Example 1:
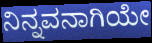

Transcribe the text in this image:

ನಿನ್ನವನಾಗಿಯೇ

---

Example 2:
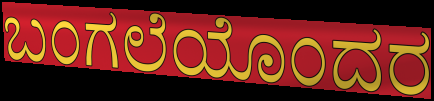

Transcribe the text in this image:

ಬಂಗಲೆಯೊಂದರ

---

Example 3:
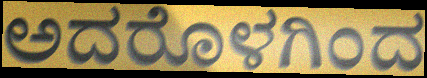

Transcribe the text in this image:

ಅದರೊಳಗಿಂದ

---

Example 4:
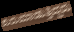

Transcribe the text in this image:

ಶುರುಮಾಡುತ್ತಿದ್ದರು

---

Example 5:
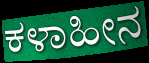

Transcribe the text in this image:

ಕಳಾಹೀನ